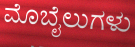
ಮೊಬೈಲುಗಳು